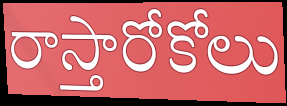
రాస్తారోకోలు